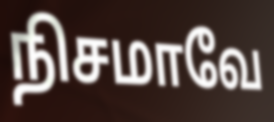
நிசமாவே